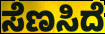
ಸೆಣಸಿದೆ